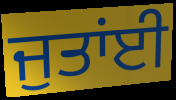
ਜੁਤਾਂਈ